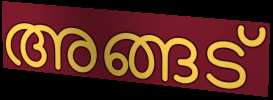
അങ്ങട്